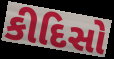
કીદિસો